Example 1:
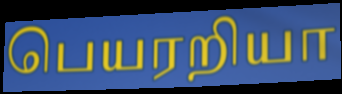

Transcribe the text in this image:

பெயரறியா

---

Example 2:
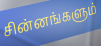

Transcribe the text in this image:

சின்னங்களும்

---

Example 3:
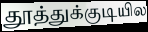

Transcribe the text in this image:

தூத்துக்குடியில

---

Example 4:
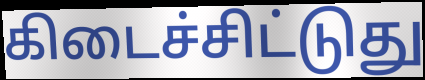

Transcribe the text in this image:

கிடைச்சிட்டுது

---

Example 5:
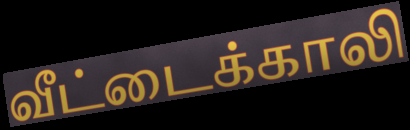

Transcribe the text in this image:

வீட்டைக்காலி